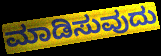
ಮಾಡಿಸುವುದು